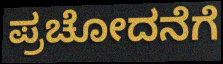
ಪ್ರಚೋದನೆಗೆ